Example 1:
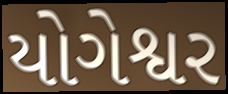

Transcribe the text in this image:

યોગેશ્વર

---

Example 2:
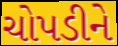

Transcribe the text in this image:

ચોપડીને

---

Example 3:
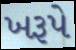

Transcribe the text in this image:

ખરૂપે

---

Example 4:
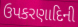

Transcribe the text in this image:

ઉપકરણાદિની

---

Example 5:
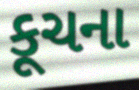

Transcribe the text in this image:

કૂચના